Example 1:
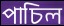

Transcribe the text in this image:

পাচিল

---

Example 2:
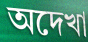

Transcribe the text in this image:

অদেখা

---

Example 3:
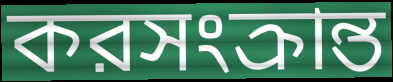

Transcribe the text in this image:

করসংক্রান্ত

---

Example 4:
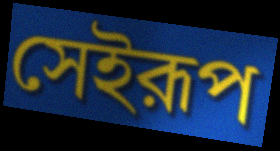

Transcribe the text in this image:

সেইরূপ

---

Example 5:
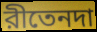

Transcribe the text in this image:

রীতেনদা